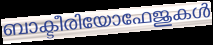
ബാക്ടീരിയോഫേജുകൾ